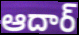
ఆదార్